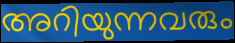
അറിയുന്നവരും